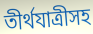
তীর্থযাত্রীসহ